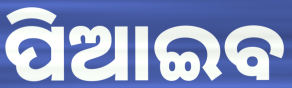
ପିଆଇବ